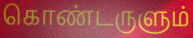
கொண்டருளும்